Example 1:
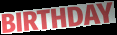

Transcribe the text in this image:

BIRTHDAY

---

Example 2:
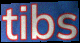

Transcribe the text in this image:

tibs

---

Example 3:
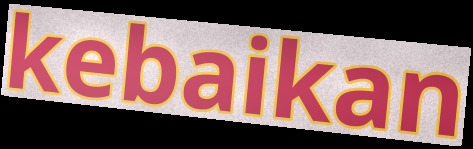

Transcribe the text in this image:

kebaikan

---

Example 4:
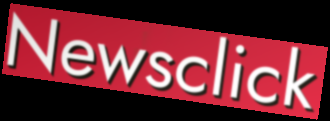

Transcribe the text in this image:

Newsclick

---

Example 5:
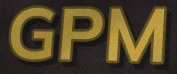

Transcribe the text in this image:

GPM